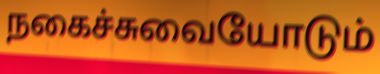
நகைச்சுவையோடும்